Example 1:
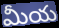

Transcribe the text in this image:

మీయ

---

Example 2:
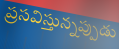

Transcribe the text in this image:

ప్రసవిస్తున్నప్పుడు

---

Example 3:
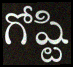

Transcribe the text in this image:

గోష్టి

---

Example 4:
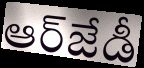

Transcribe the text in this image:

ఆర్‌జేడీ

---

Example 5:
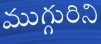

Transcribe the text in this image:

ముగ్గురిని